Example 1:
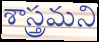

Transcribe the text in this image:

శాస్త్రమని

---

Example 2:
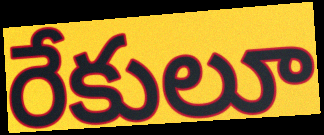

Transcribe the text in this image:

రేకులూ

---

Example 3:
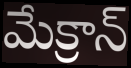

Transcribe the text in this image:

మేక్రాన్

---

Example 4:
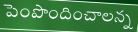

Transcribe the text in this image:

పెంపొందించాలన్న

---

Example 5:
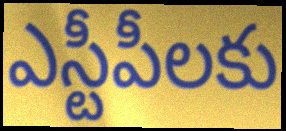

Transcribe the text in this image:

ఎస్టీపీలకు